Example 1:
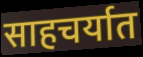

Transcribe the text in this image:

साहचर्यात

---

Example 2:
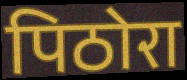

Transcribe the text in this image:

पिठोरा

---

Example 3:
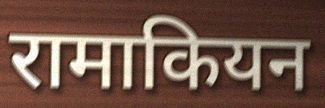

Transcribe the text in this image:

रामाकियन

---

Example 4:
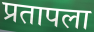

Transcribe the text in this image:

प्रतापला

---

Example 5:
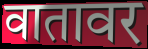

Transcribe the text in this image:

वातावर